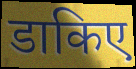
डाकिए